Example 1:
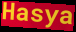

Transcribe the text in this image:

Hasya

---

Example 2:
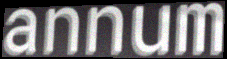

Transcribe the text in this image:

annum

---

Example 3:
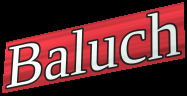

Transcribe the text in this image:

Baluch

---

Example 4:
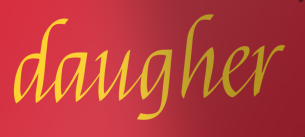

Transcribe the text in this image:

daugher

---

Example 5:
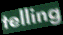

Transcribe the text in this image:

telling